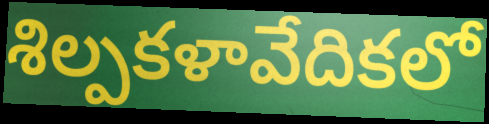
శిల్పకళావేదికలో